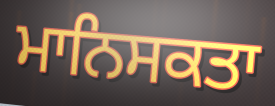
ਮਾਨਿਸਕਤਾ